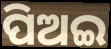
ପିଅଇ